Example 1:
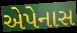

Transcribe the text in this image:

એપેનાસ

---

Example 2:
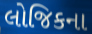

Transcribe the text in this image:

લોજિકના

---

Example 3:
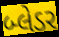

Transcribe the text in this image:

બ્લેડર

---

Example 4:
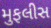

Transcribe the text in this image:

મુફલીસ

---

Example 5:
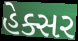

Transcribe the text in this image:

હેક્સર